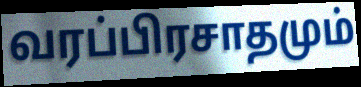
வரப்பிரசாதமும்